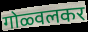
गोळ्वलकर